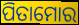
ପିତାମୋର